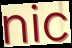
nic